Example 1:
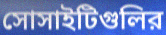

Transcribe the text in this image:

সোসাইটিগুলির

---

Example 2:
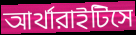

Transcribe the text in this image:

আর্থারাইটিসে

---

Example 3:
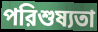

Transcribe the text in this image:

পরিশুষ্যতা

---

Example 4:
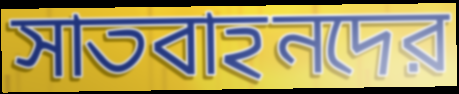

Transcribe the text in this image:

সাতবাহনদের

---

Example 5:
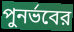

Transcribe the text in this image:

পুনর্ভবের